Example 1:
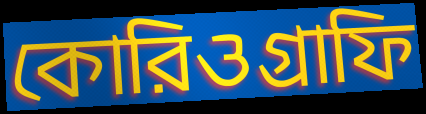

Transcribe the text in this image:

কোরিওগ্রাফি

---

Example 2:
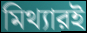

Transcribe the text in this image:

মিথ্যারই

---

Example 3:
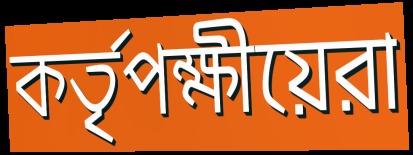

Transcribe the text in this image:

কর্তৃপক্ষীয়েরা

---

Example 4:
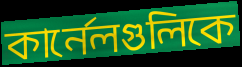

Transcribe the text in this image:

কার্নেলগুলিকে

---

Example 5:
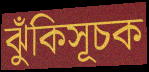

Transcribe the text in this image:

ঝুঁকিসূচক